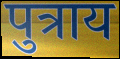
पुत्राय